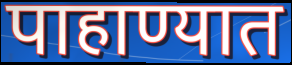
पाहाण्यात